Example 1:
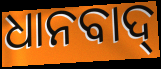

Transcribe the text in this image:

ଧାନବାଦ୍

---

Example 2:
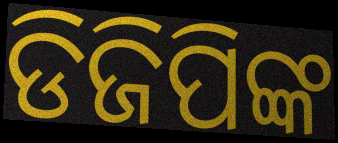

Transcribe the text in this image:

ଡିଜିପିଙ୍କ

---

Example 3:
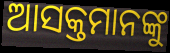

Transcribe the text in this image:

ଆସକ୍ତମାନଙ୍କୁ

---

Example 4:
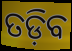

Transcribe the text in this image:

ତଡ଼ିବ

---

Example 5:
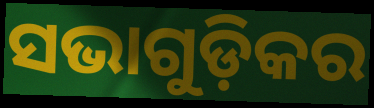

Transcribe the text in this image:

ସଭାଗୁଡ଼ିକର